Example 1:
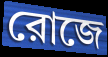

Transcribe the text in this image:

রোজে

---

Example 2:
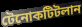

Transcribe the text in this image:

টেনোকটিটলান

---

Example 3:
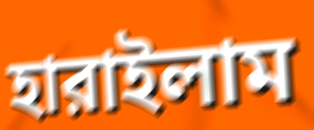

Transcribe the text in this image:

হারাইলাম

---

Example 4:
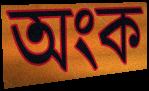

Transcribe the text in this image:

অংক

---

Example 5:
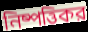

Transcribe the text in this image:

নিষ্পত্তিকর